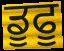
ਡੂਫੂ